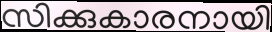
സിക്കുകാരനായി